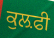
ਕੁਲ਼ਫੀ